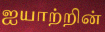
ஐயாற்றின்